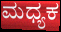
ಮಧ್ಯಕ